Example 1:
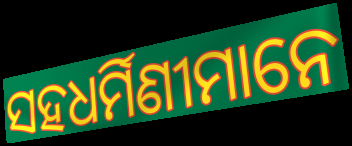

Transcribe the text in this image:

ସହଧର୍ମିଣୀମାନେ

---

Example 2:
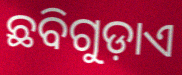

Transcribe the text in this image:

ଛବିଗୁଡ଼ାଏ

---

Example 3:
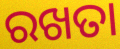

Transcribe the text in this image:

ରଖତା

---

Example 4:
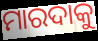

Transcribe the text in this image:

ମାରଦାକୁ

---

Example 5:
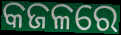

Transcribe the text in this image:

କଜଳରେ